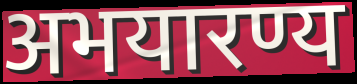
अभयारण्य